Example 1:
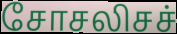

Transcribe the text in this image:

சோசலிசச்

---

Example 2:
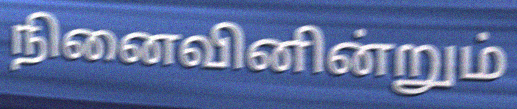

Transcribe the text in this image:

நினைவினின்றும்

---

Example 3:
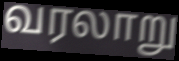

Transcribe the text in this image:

வரலாறு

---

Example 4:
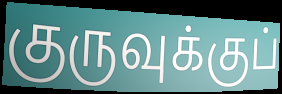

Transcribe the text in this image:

குருவுக்குப்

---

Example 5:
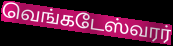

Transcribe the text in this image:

வெங்கடேஸ்வரர்